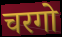
चरगो